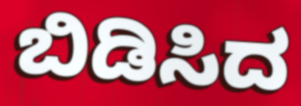
ಬಿಡಿಸಿದ